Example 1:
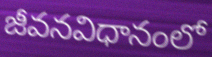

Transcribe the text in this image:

జీవనవిధానంలో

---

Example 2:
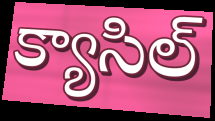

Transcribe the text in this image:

క్యాసిల్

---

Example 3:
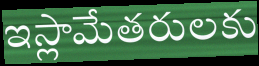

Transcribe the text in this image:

ఇస్లామేతరులకు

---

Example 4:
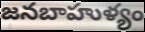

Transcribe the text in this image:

జనబాహుళ్యం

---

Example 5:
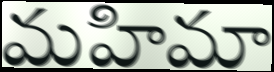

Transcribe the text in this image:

మహిమా